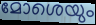
മോശെയും